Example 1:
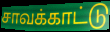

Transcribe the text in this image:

சாவக்காட்டு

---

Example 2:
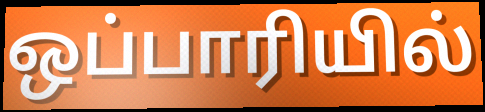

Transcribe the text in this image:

ஒப்பாரியில்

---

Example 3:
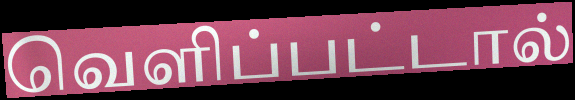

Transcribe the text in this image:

வெளிப்பட்டால்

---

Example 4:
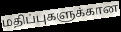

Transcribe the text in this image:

மதிப்புகளுக்கான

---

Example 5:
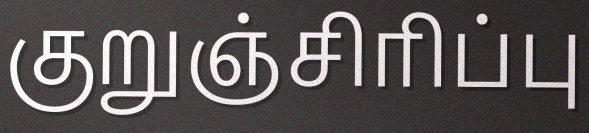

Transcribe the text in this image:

குறுஞ்சிரிப்பு